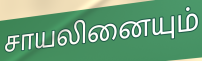
சாயலினையும்